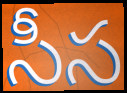
సీస